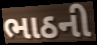
ભાઠની